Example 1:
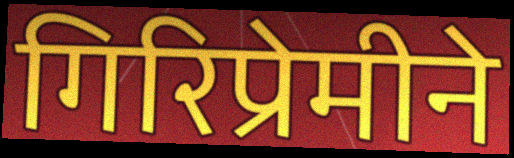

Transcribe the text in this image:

गिरिप्रेमीने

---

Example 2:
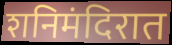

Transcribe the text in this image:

शनिमंदिरात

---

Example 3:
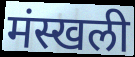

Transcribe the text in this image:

मंस्खली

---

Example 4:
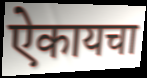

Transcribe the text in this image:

ऐकायचा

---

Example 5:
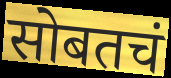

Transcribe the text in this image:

सोबतचं